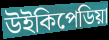
উইকিপেডিয়া